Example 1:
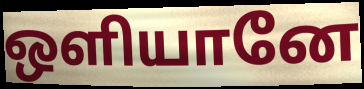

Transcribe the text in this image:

ஒளியானே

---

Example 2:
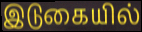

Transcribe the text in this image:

இடுகையில்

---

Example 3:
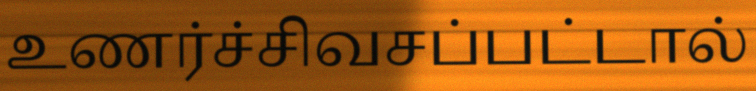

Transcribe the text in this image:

உணர்ச்சிவசப்பட்டால்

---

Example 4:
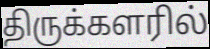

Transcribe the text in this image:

திருக்களரில்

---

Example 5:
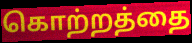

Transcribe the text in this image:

கொற்றத்தை